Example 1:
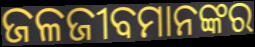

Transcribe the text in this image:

ଜଳଜୀବମାନଙ୍କର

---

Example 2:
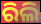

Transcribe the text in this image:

ରିଲି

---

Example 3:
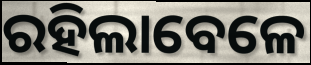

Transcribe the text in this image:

ରହିଲାବେଳେ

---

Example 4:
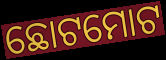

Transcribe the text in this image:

ଛୋଟମୋଟ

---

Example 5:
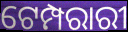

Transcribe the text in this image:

ଟେମ୍ପରାରୀ